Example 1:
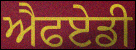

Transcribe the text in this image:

ਐਫਏਡੀ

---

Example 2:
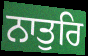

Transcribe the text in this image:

ਨਾਤੁਰਿ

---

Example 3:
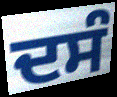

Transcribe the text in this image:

ਦਸੰ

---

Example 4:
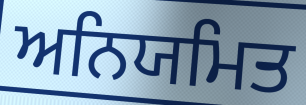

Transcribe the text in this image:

ਅਨਿਯਮਿਤ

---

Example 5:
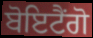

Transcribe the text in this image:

ਬੋਇਟੈਂਗੋ